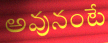
అవునంటే